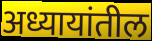
अध्यायांतील